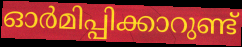
ഓർമിപ്പിക്കാറുണ്ട്